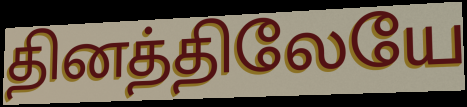
தினத்திலேயே